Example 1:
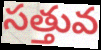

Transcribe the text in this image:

సత్తువ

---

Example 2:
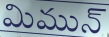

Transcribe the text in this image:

మిమున్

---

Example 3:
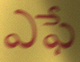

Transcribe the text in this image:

ఎఫే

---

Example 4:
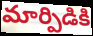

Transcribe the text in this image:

మార్పిడికి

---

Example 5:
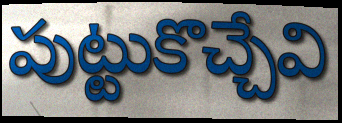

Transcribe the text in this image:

పుట్టుకొచ్చేవి